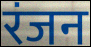
रंजन